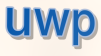
uwp